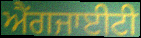
ਐਂਗਜਾਈਟੀ